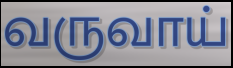
வருவாய்